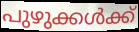
പുഴുക്കൾക്ക്